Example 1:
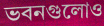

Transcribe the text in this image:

ভবনগুলোও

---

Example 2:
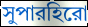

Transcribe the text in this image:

সুপারহিরো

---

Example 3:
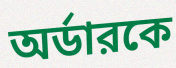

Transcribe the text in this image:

অর্ডারকে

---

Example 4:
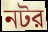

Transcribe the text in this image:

নটর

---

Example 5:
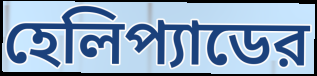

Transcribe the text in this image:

হেলিপ্যাডের